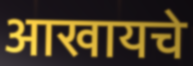
आखायचे